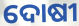
ଦୋଷୀ